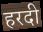
हरदी